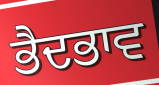
ਭੈਦਭਾਵ